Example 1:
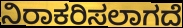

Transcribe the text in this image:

ನಿರಾಕರಿಸಲಾಗದೆ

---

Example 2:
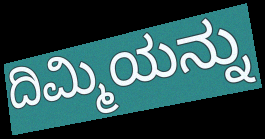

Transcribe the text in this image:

ದಿಮ್ಮಿಯನ್ನು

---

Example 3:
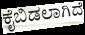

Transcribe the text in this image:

ಕೈಬಿಡಲಾಗಿದೆ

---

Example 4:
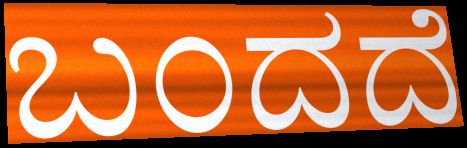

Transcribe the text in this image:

ಬಂದದೆ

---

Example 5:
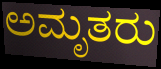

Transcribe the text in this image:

ಅಮೃತರು